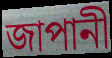
জাপানী